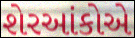
શેરઆંકોએ